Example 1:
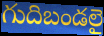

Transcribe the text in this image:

గుదిబండలై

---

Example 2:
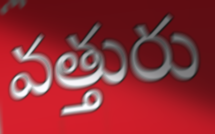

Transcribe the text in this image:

వత్తురు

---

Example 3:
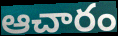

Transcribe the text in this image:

ఆచారం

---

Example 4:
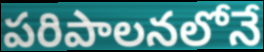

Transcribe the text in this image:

పరిపాలనలోనే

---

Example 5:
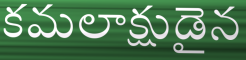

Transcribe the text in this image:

కమలాక్షుడైన